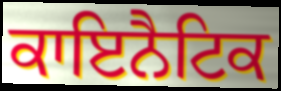
ਕਾਇਨੈਟਿਕ